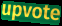
upvote